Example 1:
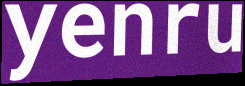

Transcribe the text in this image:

yenru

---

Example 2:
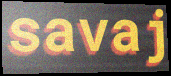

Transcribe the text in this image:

savaj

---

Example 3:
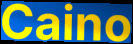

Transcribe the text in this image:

Caino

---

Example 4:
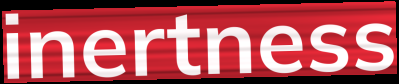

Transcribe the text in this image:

inertness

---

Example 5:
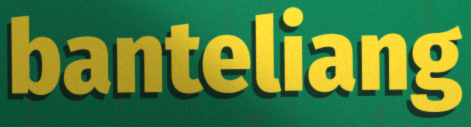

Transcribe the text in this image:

banteliang